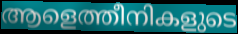
ആളെത്തീനികളുടെ